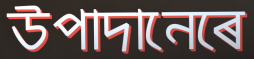
উপাদানেৰে